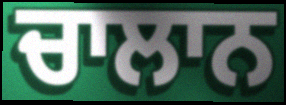
ਚਾਲਾਨ